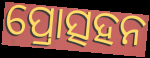
ପ୍ରୋତ୍ସହନ